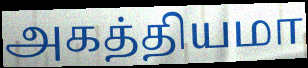
அகத்தியமா